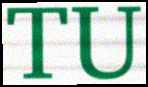
TU